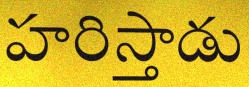
హరిస్తాడు